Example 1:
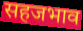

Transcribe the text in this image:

सहजभाव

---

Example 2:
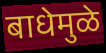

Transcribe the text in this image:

बाधेमुळे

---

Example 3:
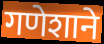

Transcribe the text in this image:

गणेशाने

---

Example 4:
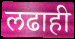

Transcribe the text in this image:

लढाही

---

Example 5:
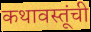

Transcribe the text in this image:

कथावस्तूंची